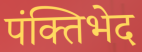
पंक्तिभेद